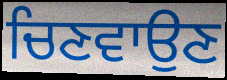
ਚਿਣਵਾਉਣ